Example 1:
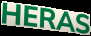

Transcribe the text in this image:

HERAS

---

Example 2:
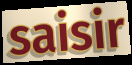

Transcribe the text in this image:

saisir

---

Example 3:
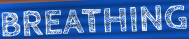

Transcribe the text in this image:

BREATHING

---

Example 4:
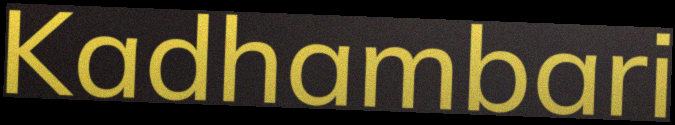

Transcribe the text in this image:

Kadhambari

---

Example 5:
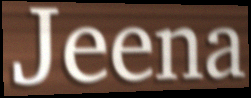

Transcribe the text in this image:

Jeena